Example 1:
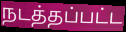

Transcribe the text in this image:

நடத்தப்பட்ட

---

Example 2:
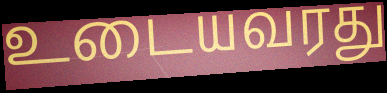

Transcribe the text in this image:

உடையவரது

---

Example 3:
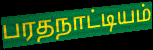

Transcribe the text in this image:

பரதநாட்டியம்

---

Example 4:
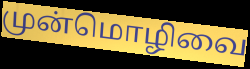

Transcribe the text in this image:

முன்மொழிவை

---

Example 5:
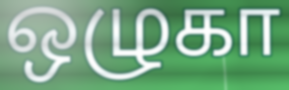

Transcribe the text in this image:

ஒழுகா